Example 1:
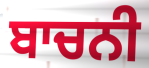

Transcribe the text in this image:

ਬਾਚਨੀ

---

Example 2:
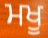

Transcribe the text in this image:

ਮਖੂ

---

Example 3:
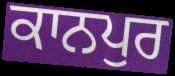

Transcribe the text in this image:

ਕਾਨਪੁਰ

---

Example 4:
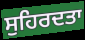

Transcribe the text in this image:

ਸੁਹਿਰਦਤਾ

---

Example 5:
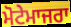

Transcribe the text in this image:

ਮੋਟੇਮਾਜਰਾ